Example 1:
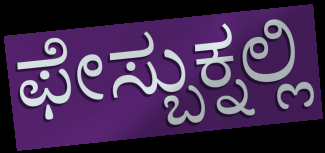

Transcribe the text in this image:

ಫೇಸ್ಬುಕ್ನಲ್ಲಿ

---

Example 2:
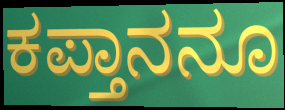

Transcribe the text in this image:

ಕಪ್ತಾನನೂ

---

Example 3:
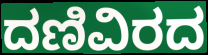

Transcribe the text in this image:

ದಣಿವಿರದ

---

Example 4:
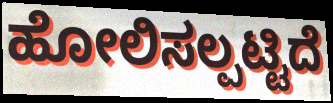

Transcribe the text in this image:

ಹೋಲಿಸಲ್ಪಟ್ಟಿದೆ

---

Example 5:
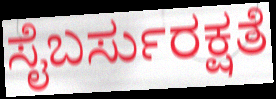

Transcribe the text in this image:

ಸೈಬರ್ಸುರಕ್ಷತೆ